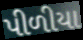
પીળીયા